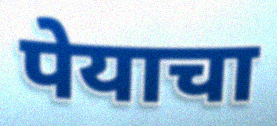
पेयाचा